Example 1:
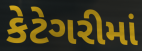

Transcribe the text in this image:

કેટેગરીમાં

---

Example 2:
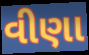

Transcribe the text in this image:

વીણા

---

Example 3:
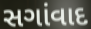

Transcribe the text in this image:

સગાંવાદ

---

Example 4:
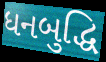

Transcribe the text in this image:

ધનબુદ્ધિ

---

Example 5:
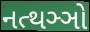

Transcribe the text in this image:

નત્થઞ્ઞો